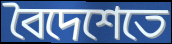
বৈদেশেতে